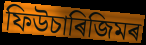
ফিউচাৰিজিমৰ